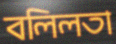
বলিলতা